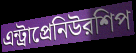
এন্ট্রাপ্রেনিউরশিপ